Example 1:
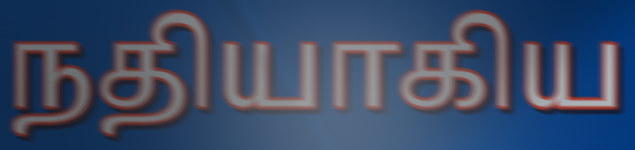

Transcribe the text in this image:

நதியாகிய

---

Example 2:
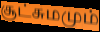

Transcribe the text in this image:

சூட்சுமமும்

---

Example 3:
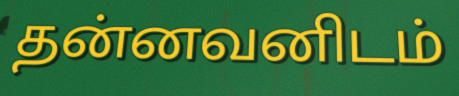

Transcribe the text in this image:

தன்னவனிடம்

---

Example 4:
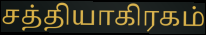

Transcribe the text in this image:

சத்தியாகிரகம்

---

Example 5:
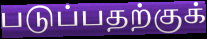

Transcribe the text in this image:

படுப்பதற்குக்